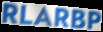
RLARBP